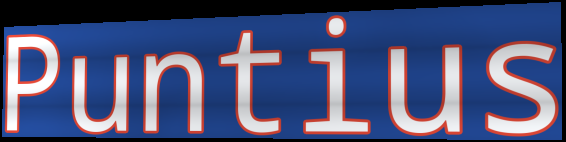
Puntius